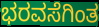
ಭರವಸೆಗಿಂತ